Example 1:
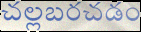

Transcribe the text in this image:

చల్లబరచడం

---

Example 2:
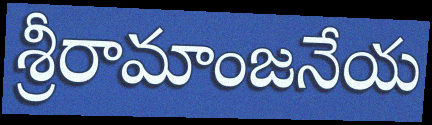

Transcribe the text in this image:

శ్రీరామాంజనేయ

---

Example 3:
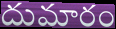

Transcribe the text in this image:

దుమారం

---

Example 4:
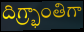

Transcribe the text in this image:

దిగ్ర్భాంతిగా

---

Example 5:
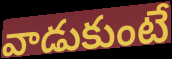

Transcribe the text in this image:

వాడుకుంటే